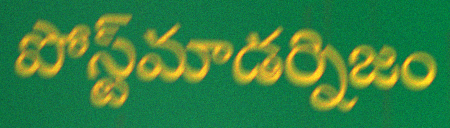
పోస్ట్‌మాడర్నిజం